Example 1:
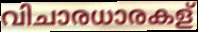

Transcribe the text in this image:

വിചാരധാരകള്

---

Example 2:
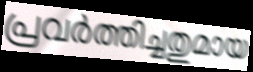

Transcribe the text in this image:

പ്രവർത്തിച്ചതുമായ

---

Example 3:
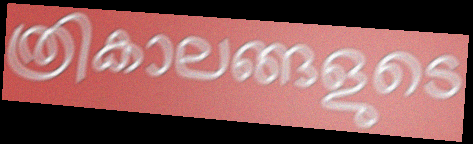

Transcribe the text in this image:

ത്രികാലങ്ങളുടെ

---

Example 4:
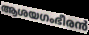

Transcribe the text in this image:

ആശയഗംഭീരൻ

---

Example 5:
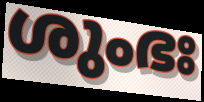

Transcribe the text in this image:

ശുംഭഃ